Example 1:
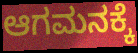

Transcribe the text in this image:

ಆಗಮನಕ್ಕೆ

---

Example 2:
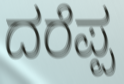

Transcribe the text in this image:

ದರೆಪ್ಪ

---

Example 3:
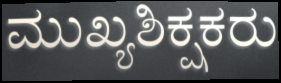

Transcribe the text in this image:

ಮುಖ್ಯಶಿಕ್ಷಕರು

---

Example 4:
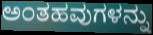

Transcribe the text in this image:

ಅಂತಹವುಗಳನ್ನು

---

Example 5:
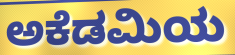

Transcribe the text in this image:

ಅಕೆಡಮಿಯ